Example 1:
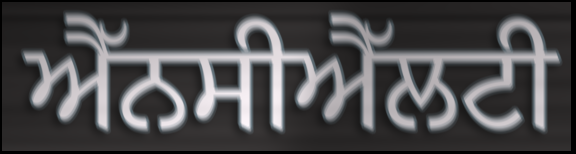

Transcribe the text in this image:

ਐੱਨਸੀਐੱਲਟੀ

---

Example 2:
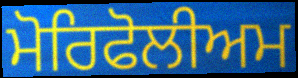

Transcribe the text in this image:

ਮੋਰਿਫੋਲੀਅਮ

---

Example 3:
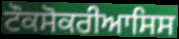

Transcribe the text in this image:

ਟੌਕਸੋਕਰੀਆਸਿਸ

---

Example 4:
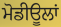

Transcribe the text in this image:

ਮੋਡੀਊਲਾਂ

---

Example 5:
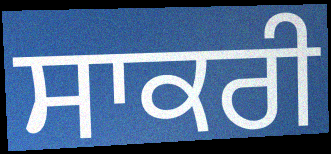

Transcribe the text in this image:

ਸਾਕਰੀ